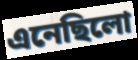
এনেছিলো